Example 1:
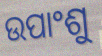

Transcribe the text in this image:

ଉପାଂଶୁ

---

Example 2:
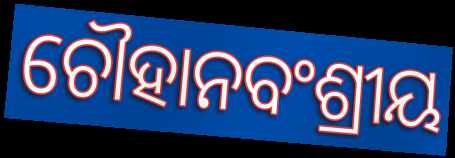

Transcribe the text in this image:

ଚୌହାନବଂଶ୍ରୀୟ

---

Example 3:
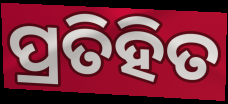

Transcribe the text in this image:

ପ୍ରତିହିତ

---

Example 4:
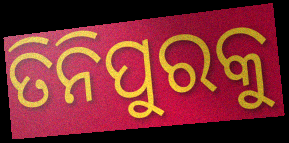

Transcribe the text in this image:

ତିନିପୁରକୁ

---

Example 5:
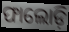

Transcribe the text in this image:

ଫାଲୋଡ଼ି